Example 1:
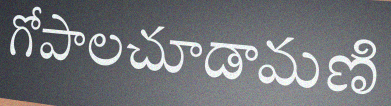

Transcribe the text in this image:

గోపాలచూడామణి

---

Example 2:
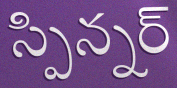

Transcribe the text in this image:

స్పిన్నర్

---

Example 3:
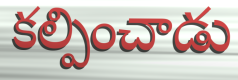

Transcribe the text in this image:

కల్పించాడు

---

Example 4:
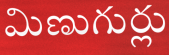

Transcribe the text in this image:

మిణుగుర్లు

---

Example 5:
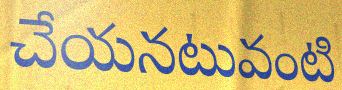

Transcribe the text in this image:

చేయనటువంటి